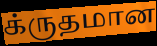
க்ருதமான